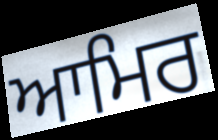
ਆਮਿਰ